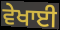
ਵੇਖਾਈ